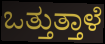
ಒತ್ತುತ್ತಾಳೆ